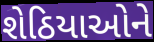
શેઠિયાઓને